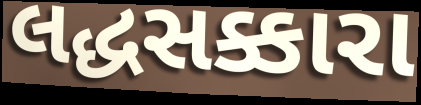
લદ્ધસક્કારા